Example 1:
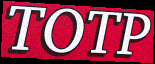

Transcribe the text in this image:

TOTP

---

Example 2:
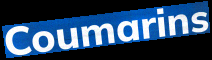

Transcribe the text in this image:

Coumarins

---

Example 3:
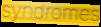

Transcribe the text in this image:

syndromes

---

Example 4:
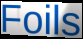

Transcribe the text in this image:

Foils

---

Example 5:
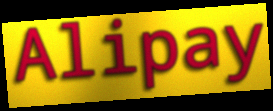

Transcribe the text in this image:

Alipay